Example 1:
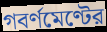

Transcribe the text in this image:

গবর্ণমেণ্টের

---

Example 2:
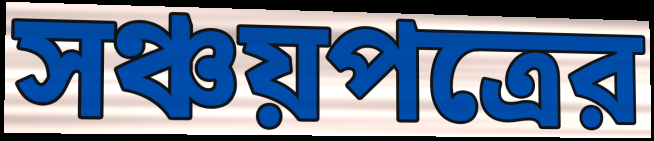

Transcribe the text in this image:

সঞ্চয়পত্রের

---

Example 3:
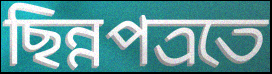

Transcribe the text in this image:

ছিন্নপত্রতে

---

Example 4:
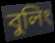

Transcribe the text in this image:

বুলিং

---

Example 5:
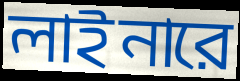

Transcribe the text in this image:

লাইনারে